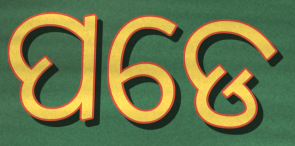
ପଡେ